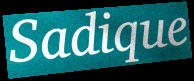
Sadique